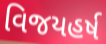
વિજયહર્ષ